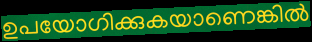
ഉപയോഗിക്കുകയാണെങ്കിൽ